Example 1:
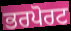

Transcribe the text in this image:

ਭਰਪੋਰਟ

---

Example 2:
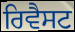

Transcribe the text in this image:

ਰਿਵੈਸਟ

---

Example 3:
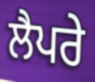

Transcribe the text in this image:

ਲੈਪਰੇ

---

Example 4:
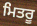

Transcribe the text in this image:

ਮਿਤਰੂ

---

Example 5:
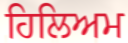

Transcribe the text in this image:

ਹਿਲਿਅਮ